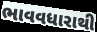
ભાવવધારાથી